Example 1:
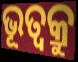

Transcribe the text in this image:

ଭୂତ୍ଵକ୍ରୁ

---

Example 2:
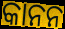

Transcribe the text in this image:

କାନନ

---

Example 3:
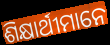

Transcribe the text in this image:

ଶିକ୍ଷାର୍ଥୀମାନେ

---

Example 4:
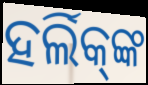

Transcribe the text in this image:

ହର୍ଲିକ୍‌ଙ୍କ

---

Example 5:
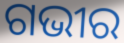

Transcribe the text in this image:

ଗଭୀର